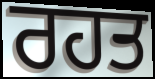
ਰਹਤ